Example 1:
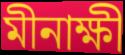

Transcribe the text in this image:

মীনাক্ষী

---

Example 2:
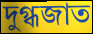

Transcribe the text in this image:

দুগ্ধজাত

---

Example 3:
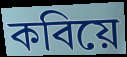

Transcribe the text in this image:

কবিয়ে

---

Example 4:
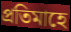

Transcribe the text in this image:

প্ৰতিমাহে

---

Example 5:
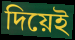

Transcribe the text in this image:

দিয়েই